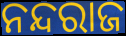
ନନ୍ଦରାଜ